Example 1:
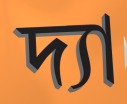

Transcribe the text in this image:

দ্যা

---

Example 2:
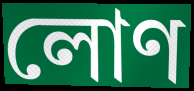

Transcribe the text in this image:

লোণ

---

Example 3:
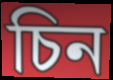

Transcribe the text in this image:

চিন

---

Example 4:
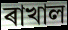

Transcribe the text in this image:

ৰাখাল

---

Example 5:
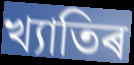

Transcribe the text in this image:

খ্যাতিৰ